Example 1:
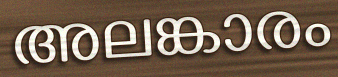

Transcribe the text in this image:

അലങ്കാരം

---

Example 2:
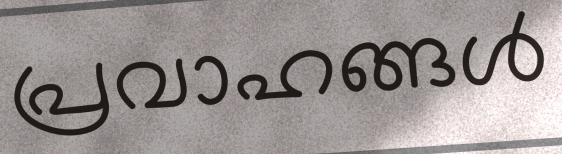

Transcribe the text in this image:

പ്രവാഹങ്ങൾ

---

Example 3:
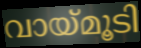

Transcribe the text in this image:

വായ്മൂടി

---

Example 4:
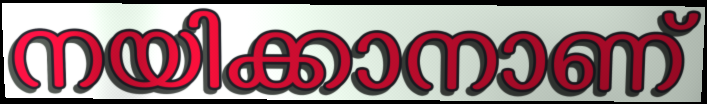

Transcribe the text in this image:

നയിക്കാനാണ്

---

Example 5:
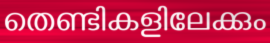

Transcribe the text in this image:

തെണ്ടികളിലേക്കും